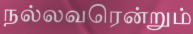
நல்லவரென்றும்